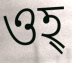
ওহ্